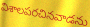
విశాలపరచినవాడను